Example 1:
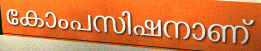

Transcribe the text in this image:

കോംപസിഷനാണ്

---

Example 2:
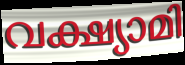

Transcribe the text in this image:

വക്ഷ്യാമി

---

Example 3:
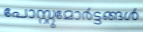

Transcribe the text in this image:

പോസ്റ്റുമോർട്ടങ്ങൾ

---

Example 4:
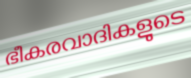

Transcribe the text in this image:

ഭീകരവാദികളുടെ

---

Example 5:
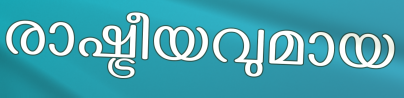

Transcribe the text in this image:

രാഷ്ട്രീയവുമായ